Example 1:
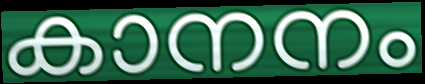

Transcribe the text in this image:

കാനനം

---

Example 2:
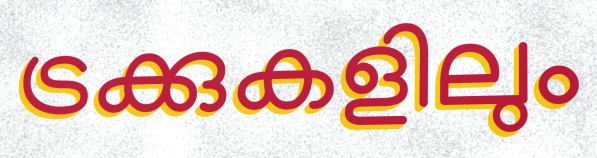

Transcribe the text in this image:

ട്രക്കുകളിലും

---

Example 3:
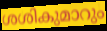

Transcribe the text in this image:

ശശികുമാറും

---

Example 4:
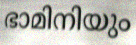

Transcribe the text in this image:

ഭാമിനിയും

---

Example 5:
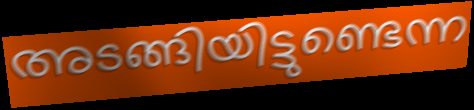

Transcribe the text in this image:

അടങ്ങിയിട്ടുണ്ടെന്ന